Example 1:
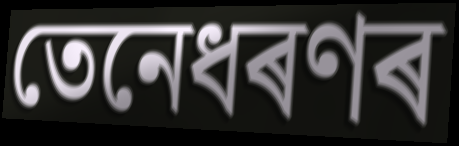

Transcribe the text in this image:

তেনেধৰণৰ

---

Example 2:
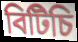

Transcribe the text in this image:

বিটিচি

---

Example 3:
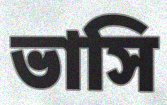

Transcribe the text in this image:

ভাসি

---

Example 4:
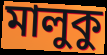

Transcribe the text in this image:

মালুকু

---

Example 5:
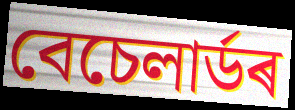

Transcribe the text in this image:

বেচেলাৰ্ডৰ